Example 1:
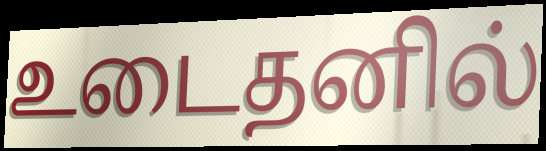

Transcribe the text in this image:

உடைதனில்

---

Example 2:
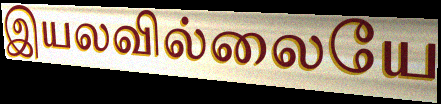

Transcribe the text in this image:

இயலவில்லையே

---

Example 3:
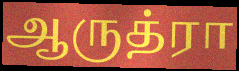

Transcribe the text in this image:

ஆருத்ரா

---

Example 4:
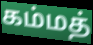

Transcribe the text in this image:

கம்மத்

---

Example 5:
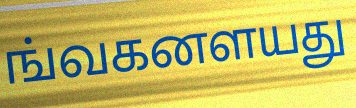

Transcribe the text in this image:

ங்வகனளயது